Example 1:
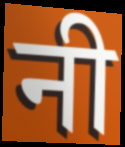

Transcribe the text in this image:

नी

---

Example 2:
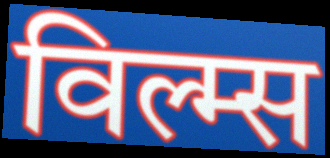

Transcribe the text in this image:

विल्म्स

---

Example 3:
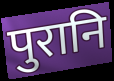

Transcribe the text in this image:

पुरानि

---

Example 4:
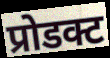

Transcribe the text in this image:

प्रोडक्ट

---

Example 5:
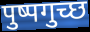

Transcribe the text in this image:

पुष्पगुच्छ